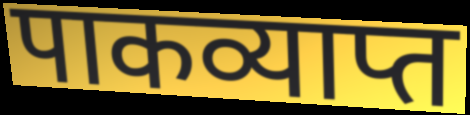
पाकव्याप्त